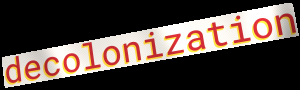
decolonization